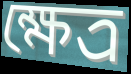
ক্ষেত্র